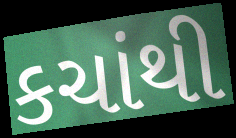
કચાંથી